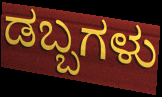
ಡಬ್ಬಗಳು